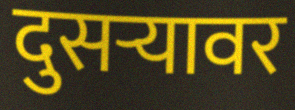
दुसऱ्यावर